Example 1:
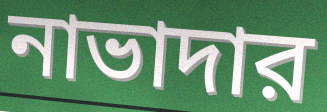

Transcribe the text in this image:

নাভাদার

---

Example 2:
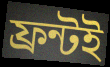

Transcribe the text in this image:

ফ্রন্টই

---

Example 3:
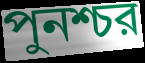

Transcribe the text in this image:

পুনশ্চর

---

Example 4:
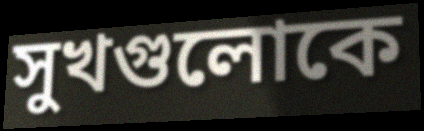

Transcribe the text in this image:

সুখগুলোকে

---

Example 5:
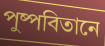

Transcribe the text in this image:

পুষ্পবিতানে